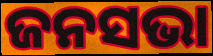
ଜନସଭା